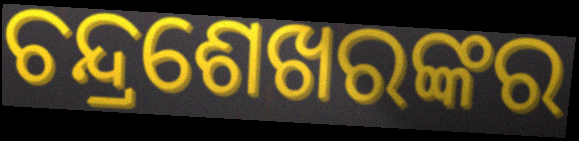
ଚନ୍ଦ୍ରଶେଖରଙ୍କର